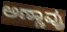
ಅಣ್ಣಾವ್ರು